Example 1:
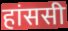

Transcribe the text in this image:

हांससी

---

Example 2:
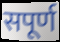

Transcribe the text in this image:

सपूर्ण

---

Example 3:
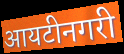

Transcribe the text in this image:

आयटीनगरी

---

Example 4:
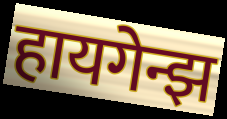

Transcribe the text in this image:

हायगेन्झ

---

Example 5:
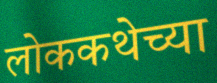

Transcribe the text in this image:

लोककथेच्या